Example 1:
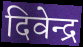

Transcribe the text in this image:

दिवेन्द्र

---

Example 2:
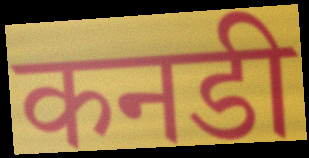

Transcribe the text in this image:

कनडी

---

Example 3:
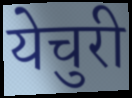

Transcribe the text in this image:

येचुरी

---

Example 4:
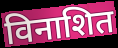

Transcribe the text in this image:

विनाशित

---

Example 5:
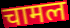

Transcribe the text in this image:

चामल